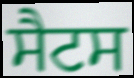
ਸੈਟਸ